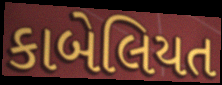
કાબેલિયત